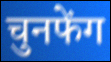
चुनफेंग